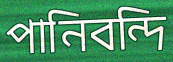
পানিবন্দি